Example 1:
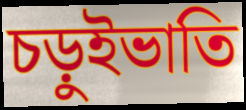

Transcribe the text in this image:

চড়ুইভাতি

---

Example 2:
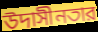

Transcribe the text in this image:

উদাসীনতার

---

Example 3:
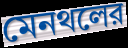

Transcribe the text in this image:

মেনথলের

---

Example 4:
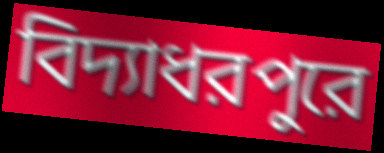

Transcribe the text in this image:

বিদ্যাধরপুরে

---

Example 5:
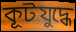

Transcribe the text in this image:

কূটযুদ্ধে